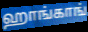
ஹாங்காங்